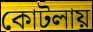
কোটলায়